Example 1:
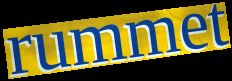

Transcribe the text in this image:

rummet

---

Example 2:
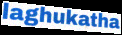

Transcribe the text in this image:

laghukatha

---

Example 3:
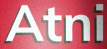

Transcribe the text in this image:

Atni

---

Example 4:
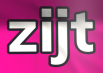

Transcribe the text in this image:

zijt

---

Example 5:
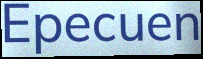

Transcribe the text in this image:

Epecuen